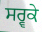
ਸਰ੍ਵਕੇ